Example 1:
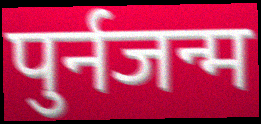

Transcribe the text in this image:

पुर्नजन्म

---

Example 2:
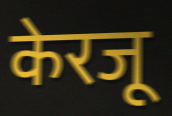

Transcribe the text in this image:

केरजू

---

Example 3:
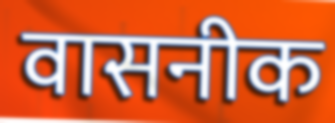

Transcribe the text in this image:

वासनीक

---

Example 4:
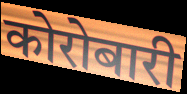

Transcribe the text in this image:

कोरोबारी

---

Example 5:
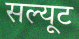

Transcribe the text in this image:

सल्यूट